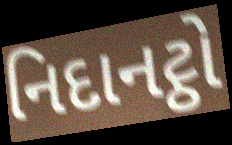
નિદાનટ્ઠો